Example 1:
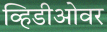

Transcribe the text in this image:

व्हिडीओवर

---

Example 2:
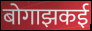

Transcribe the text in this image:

बोगाझकई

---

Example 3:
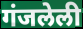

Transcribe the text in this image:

गंजलेली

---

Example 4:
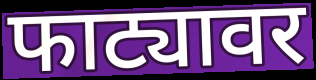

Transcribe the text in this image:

फाट्यावर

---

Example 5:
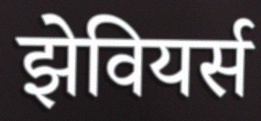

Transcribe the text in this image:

झेवियर्स